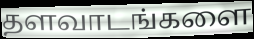
தளவாடங்களை